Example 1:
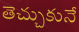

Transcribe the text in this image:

తెచ్చుకునే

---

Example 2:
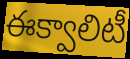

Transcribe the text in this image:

ఈక్వాలిటీ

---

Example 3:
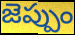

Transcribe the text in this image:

జెప్పుం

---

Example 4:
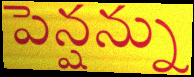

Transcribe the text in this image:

పెన్షన్ను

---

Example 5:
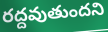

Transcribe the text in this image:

రద్దవుతుందని